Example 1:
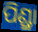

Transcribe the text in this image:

ପିଣ୍ଡ୍ରା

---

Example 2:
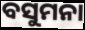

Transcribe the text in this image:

ବସୁମନା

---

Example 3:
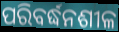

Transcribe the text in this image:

ପରିବର୍ଦ୍ଧନଶୀଳ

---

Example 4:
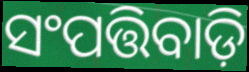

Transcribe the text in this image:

ସଂପତ୍ତିବାଡ଼ି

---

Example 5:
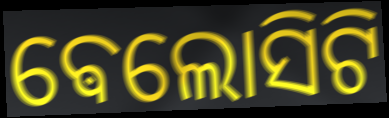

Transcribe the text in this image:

ଵେଲୋସିଟି